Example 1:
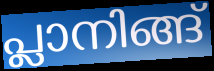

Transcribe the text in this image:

പ്ലാനിങ്ങ്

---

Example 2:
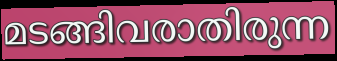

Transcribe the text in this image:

മടങ്ങിവരാതിരുന്ന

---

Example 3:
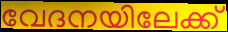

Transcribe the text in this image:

വേദനയിലേക്ക്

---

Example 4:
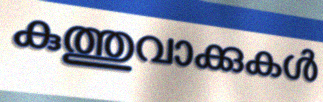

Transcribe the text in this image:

കുത്തുവാക്കുകൾ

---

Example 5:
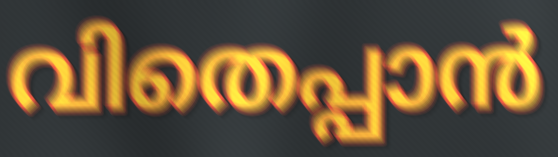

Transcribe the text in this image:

വിതെപ്പാൻ